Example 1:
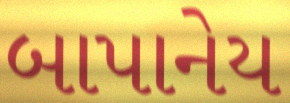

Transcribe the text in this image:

બાપાનેય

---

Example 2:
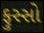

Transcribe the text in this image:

ફુસ્સો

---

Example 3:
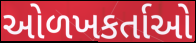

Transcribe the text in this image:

ઓળખકર્તાઓ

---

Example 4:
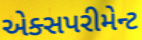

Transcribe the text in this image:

એક્સપરીમેન્ટ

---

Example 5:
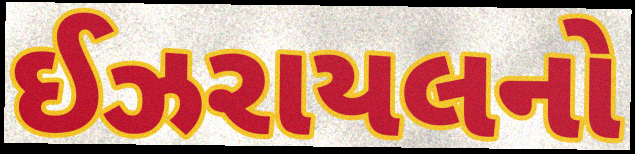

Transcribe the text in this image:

ઈઝરાયલનો